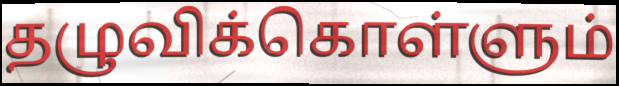
தழுவிக்கொள்ளும்